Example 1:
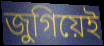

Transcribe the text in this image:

জুগিয়েই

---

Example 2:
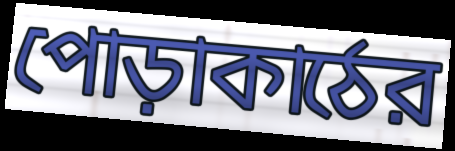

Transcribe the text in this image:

পোড়াকাঠের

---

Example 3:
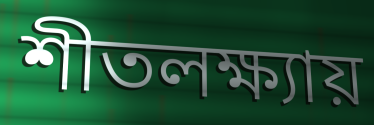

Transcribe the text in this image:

শীতলক্ষ্যায়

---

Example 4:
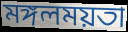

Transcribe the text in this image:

মঙ্গলময়তা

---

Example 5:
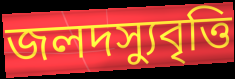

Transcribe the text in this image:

জলদস্যুবৃত্তি